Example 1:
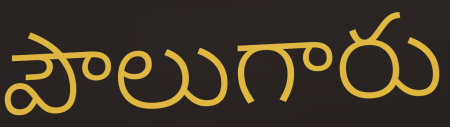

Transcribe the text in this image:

పౌలుగారు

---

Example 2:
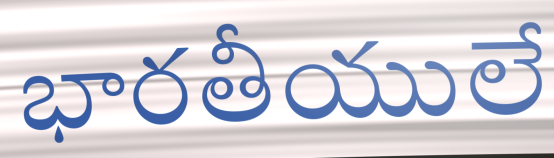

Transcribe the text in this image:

భారతీయులే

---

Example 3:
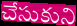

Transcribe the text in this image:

చేసుకుని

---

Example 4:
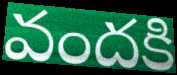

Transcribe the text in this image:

వందకి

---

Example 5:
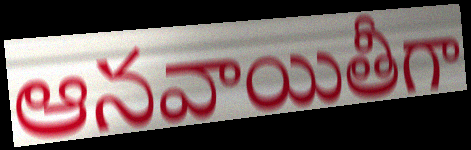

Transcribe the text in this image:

ఆనవాయితీగా